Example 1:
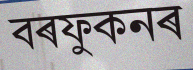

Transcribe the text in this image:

বৰফুকনৰ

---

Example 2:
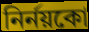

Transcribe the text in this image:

নিৰ্নয়কো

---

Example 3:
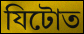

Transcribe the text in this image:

যিটোত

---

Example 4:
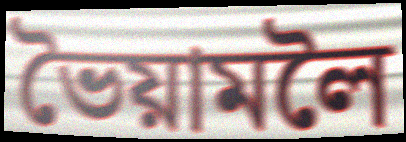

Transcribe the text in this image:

ভৈয়ামলৈ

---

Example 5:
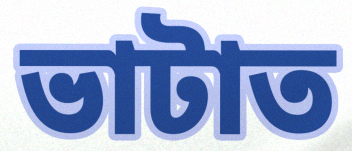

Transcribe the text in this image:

ভাটাত